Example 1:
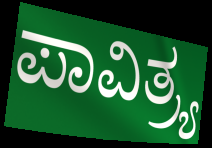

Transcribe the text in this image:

ಪಾವಿತ್ರ್ಯ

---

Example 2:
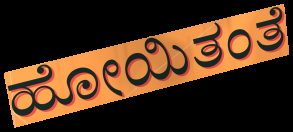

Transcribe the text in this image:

ಹೋಯಿತಂತೆ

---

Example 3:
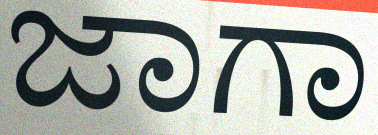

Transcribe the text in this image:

ಜಾಗಾ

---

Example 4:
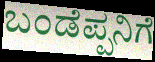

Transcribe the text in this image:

ಬಂಡೆಪ್ಪನಿಗೆ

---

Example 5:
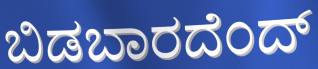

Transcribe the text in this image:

ಬಿಡಬಾರದೆಂದ್